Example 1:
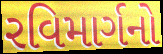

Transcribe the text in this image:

રવિમાર્ગનો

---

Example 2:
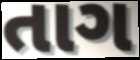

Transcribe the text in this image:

તાગ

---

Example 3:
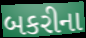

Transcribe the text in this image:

બકરીના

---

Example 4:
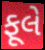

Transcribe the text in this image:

ફૂલે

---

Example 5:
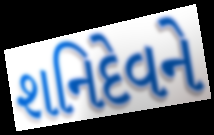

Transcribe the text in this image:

શનિદેવને